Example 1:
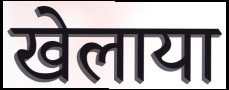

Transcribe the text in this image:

खेलाया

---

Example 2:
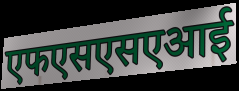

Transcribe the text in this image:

एफएसएसएआई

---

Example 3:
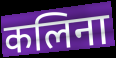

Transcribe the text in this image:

कलिना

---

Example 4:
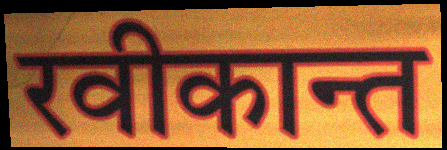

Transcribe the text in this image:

रवीकान्त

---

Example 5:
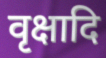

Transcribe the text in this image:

वृक्षादि